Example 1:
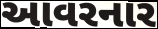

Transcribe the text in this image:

આવરનાર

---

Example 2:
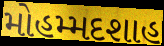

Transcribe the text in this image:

મોહમ્મદશાહ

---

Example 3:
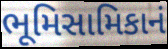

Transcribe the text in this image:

ભૂમિસામિકાનં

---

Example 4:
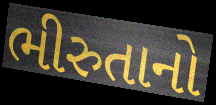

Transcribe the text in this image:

ભીરુતાનો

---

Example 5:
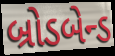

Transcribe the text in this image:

બ્રોડબેન્ડ